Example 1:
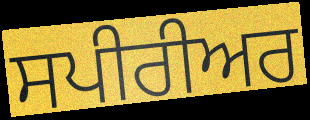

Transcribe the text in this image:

ਸਪੀਰੀਅਰ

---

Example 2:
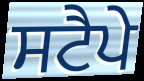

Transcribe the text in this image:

ਸਟੈਪੇ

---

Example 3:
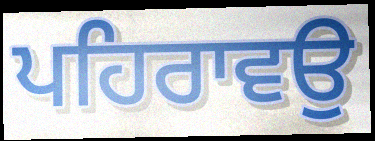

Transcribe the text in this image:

ਪਹਿਰਾਵਉ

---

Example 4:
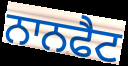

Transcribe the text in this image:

ਨਾਨਫੈਟ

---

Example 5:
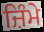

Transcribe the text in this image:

ਜ਼ਿੰਮੇ